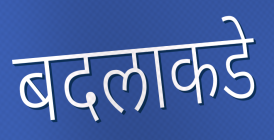
बदलाकडे